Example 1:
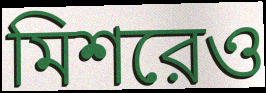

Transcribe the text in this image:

মিশরেও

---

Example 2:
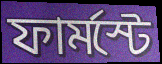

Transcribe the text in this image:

ফার্মস্টে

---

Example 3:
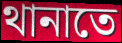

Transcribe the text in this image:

থানাতে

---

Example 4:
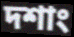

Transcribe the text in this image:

দশাং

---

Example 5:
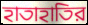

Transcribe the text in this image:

হাতাহাতির